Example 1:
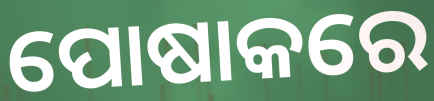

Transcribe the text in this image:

ପୋଷାକରେ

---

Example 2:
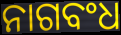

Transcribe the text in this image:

ନାଗବଂଧ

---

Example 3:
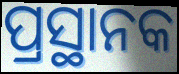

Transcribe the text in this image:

ପ୍ରସ୍ଥାନକ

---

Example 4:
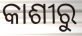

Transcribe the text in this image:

କାଶୀରୁ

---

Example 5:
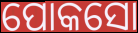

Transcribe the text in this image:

ପୋକସୋ